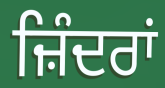
ਜ਼ਿੰਦਰਾਂ